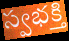
స్వభక్తి